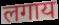
लगाय